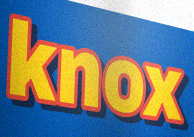
knox